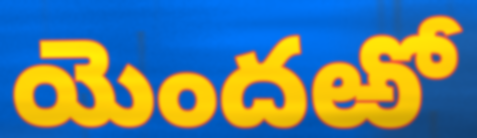
యెందఱో